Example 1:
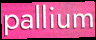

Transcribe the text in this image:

pallium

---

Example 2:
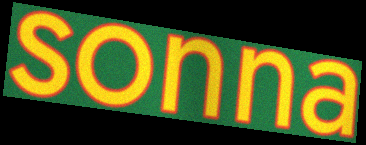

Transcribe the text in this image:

sonna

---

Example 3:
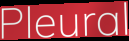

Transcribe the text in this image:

Pleural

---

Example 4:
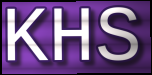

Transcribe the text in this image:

KHS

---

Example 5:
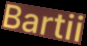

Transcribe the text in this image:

Bartii